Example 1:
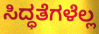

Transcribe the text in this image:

ಸಿದ್ಧತೆಗಳೆಲ್ಲ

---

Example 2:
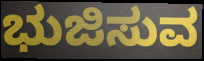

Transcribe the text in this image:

ಭುಜಿಸುವ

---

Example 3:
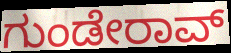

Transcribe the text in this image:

ಗುಂಡೇರಾವ್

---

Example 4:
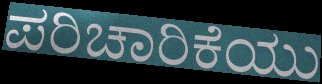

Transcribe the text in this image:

ಪರಿಚಾರಿಕೆಯು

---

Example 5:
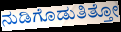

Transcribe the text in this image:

ನುಡಿಗೊಡುತಿತ್ತೋ